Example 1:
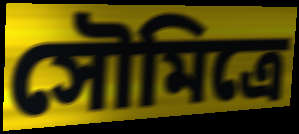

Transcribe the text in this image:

সৌমিত্রে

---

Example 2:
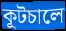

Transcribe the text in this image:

কূটচালে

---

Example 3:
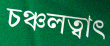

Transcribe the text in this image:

চঞ্চলত্বাৎ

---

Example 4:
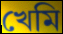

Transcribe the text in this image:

খেমি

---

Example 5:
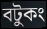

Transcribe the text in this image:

বটুকং